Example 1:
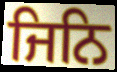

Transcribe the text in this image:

ਜਿਨਿ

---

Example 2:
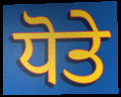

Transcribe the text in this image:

ਧੋਤੇ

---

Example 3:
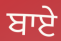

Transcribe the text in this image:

ਬਾਏ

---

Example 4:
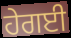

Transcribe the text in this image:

ਹੇਗਈ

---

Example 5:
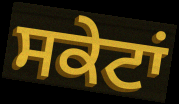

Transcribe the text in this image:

ਸਕੇਟਾਂ